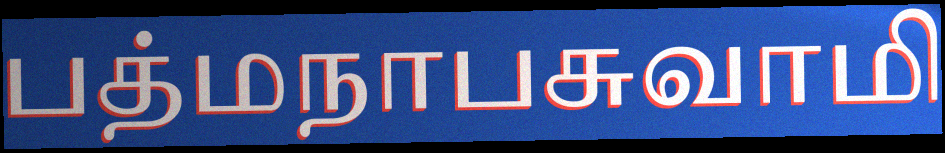
பத்மநாபசுவாமி